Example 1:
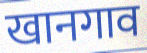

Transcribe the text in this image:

खानगाव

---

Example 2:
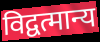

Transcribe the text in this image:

विद्वत्मान्य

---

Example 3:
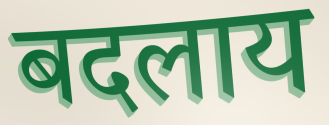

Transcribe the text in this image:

बदलाय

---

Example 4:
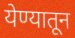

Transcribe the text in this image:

येण्यातून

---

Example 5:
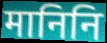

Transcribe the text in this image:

मानिनि